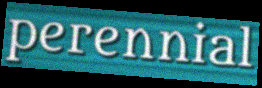
perennial